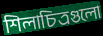
শিলাচিত্রগুলো